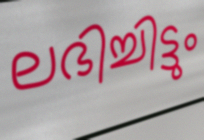
ലഭിച്ചിട്ടും